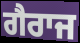
ਗੈਰਾਜ